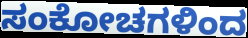
ಸಂಕೋಚಗಳಿಂದ